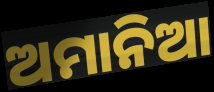
ଅମାନିଆ